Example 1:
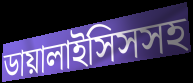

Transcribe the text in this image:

ডায়ালাইসিসসহ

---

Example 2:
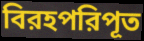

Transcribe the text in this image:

বিরহপরিপূত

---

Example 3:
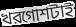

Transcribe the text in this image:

খরগোশটাই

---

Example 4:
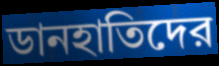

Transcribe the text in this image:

ডানহাতিদের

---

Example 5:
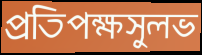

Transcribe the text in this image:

প্রতিপক্ষসুলভ